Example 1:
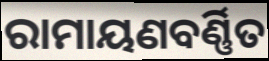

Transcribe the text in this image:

ରାମାୟଣବର୍ଣ୍ଣିତ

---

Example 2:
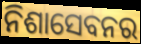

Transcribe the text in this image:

ନିଶାସେବନର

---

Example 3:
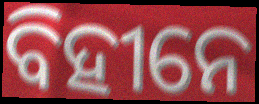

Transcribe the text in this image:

ବିହୀନେ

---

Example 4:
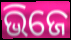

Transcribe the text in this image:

ଭିଜେ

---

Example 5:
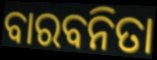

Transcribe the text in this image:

ବାରବନିତା